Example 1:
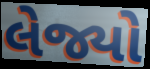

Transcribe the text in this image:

લેજ્યો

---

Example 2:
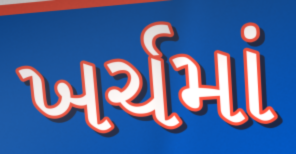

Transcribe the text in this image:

ખર્ચમાં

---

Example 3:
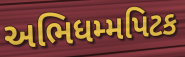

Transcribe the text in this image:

અભિધમ્મપિટક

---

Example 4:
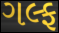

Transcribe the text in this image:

ગલ્ફ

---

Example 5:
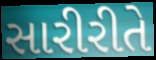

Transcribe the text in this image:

સારીરીતે